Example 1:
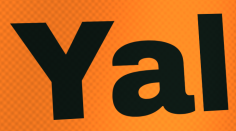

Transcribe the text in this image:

Yal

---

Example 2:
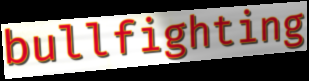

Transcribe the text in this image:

bullfighting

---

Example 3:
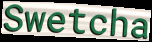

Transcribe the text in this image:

Swetcha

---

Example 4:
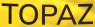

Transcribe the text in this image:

TOPAZ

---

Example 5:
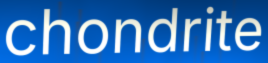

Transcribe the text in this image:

chondrite